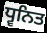
ਧ੍ਵਨਿਤ